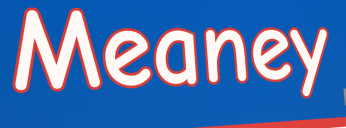
Meaney